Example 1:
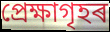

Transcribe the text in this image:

প্ৰেক্ষাগৃহৰ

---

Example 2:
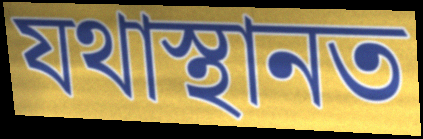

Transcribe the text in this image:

যথাস্থানত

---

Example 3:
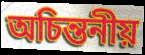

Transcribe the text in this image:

অচিন্তনীয়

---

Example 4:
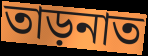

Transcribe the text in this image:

তাড়নাত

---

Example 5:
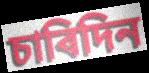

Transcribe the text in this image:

চাৰিদিন